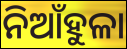
ନିଆଁହୁଳା